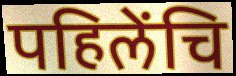
पहिलेंचि